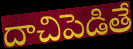
దాచిపెడితే